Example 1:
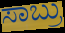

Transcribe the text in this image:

ಸಾಬ್ರು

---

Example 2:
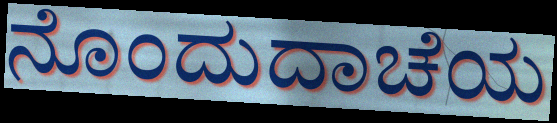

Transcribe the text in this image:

ನೊಂದುದಾಚೆಯ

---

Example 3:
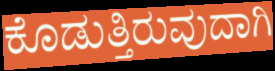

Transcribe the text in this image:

ಕೊಡುತ್ತಿರುವುದಾಗಿ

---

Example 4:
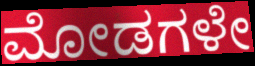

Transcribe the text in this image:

ಮೋಡಗಳೇ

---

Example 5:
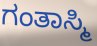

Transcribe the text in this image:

ಗಂತಾಸ್ಮಿ